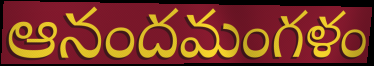
ఆనందమంగళం